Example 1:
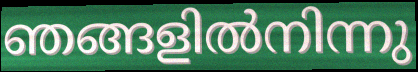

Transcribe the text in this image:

ഞങ്ങളിൽനിന്നു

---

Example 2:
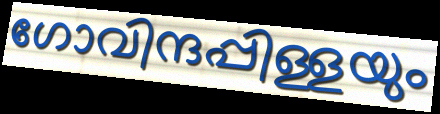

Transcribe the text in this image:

ഗോവിന്ദപ്പിള്ളയും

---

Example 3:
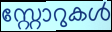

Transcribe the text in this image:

സ്റ്റോറുകൾ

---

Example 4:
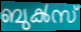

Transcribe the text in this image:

ബുൿസ്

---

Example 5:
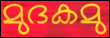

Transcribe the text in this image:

മുദകമു